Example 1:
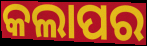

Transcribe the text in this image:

କଲାପର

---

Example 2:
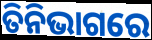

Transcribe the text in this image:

ତିନିଭାଗରେ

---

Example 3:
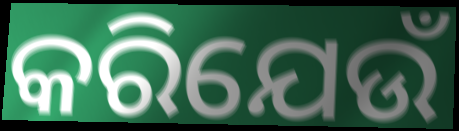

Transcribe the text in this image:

କରିଯେଉଁ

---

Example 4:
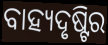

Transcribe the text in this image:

ବାହ୍ୟଦୃଷ୍ଟିର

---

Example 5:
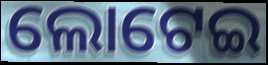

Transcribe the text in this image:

ଲୋଟେଇ